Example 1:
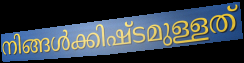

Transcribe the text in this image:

നിങ്ങൾക്കിഷ്ടമുള്ളത്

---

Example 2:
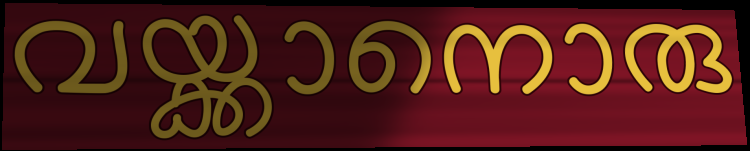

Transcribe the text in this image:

വയ്ക്കാനൊരു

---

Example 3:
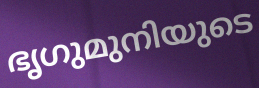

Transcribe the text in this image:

ഭൃഗുമുനിയുടെ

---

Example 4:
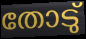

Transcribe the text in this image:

തോടു്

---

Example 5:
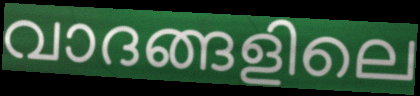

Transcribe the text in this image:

വാദങ്ങളിലെ